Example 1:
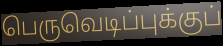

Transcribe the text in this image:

பெருவெடிப்புக்குப்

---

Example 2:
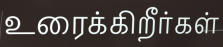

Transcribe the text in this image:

உரைக்கிறீர்கள்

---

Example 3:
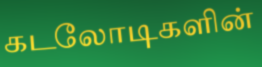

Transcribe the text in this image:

கடலோடிகளின்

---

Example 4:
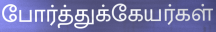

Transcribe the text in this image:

போர்த்துக்கேயர்கள்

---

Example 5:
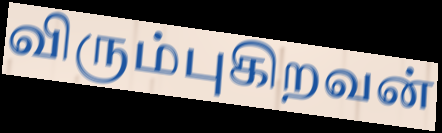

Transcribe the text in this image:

விரும்புகிறவன்